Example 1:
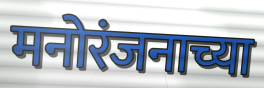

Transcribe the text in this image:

मनोरंजनाच्या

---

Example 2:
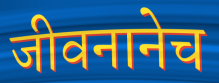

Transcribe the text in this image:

जीवनानेच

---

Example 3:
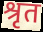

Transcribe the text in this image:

श्रृत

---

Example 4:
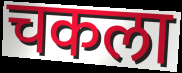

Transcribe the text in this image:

चकला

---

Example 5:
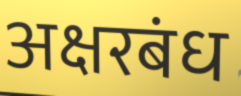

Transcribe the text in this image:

अक्षरबंध